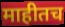
माहीतच